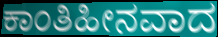
ಕಾಂತಿಹೀನವಾದ